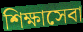
শিক্ষাসেবা